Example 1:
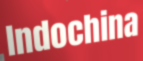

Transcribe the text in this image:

Indochina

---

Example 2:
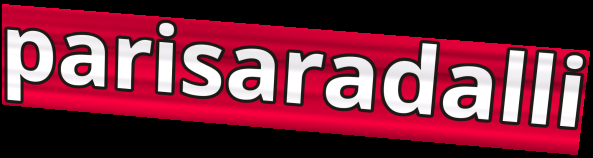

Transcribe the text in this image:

parisaradalli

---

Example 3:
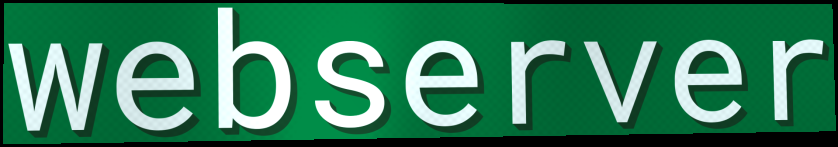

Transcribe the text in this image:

webserver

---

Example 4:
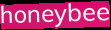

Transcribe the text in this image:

honeybee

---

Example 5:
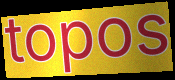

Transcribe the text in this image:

topos